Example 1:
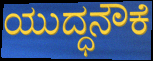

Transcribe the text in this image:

ಯುದ್ಧನೌಕೆ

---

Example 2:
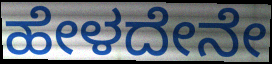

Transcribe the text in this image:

ಹೇಳದೇನೇ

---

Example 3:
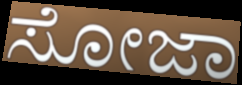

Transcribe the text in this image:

ಸೋಜಾ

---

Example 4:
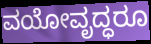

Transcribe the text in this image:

ವಯೋವೃದ್ಧರೂ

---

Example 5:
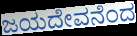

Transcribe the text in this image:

ಜಯದೇವನೆಂದ